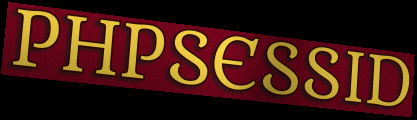
PHPSESSID